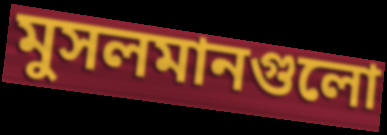
মুসলমানগুলো